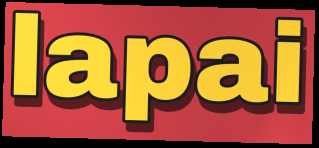
lapai